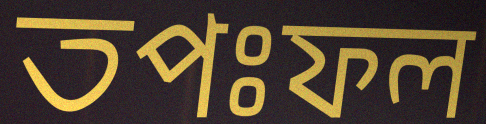
তপঃফল